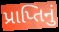
પ્રાપ્તિનું